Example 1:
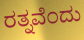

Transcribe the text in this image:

ರತ್ನವೆಂದು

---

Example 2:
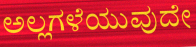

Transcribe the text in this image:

ಅಲ್ಲಗಳೆಯುವುದೇ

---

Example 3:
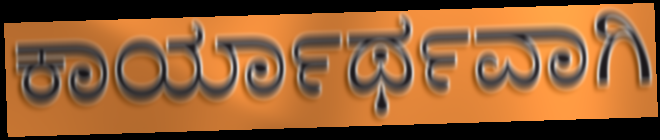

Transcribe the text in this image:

ಕಾರ್ಯಾರ್ಥವಾಗಿ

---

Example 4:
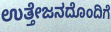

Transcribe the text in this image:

ಉತ್ತೇಜನದೊಂದಿಗೆ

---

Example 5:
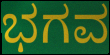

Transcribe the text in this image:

ಭಗವ